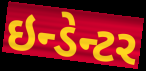
ઇન્ડેન્ટર